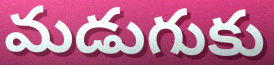
మడుగుకు